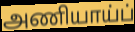
அணியாய்ப்